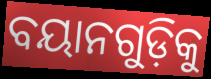
ବୟାନଗୁଡ଼ିକୁ